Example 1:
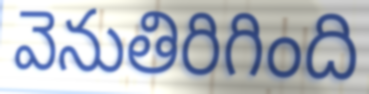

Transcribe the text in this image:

వెనుతిరిగింది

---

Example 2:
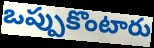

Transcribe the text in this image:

ఒప్పుకొంటారు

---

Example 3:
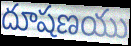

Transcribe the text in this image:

దూషణయు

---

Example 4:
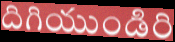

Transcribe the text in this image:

దిగియుండిరి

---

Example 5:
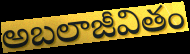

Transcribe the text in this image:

అబలాజీవితం